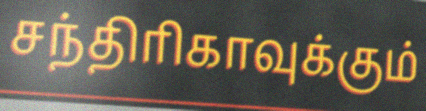
சந்திரிகாவுக்கும்